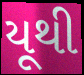
યૂથી